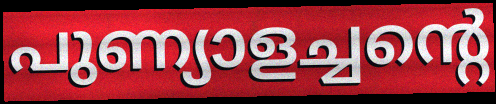
പുണ്യാളച്ചന്റെ